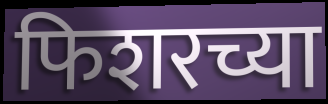
फिशरच्या